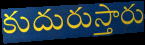
కుదురుస్తారు